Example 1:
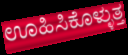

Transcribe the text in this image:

ಊಹಿಸಿಕೊಳ್ಳುತ್ತ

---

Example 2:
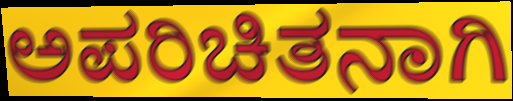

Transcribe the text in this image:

ಅಪರಿಚಿತನಾಗಿ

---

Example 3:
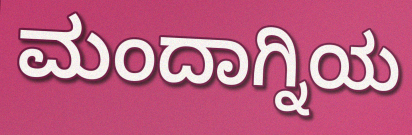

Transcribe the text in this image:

ಮಂದಾಗ್ನಿಯ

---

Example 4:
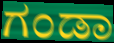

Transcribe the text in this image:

ಗಂಡಾ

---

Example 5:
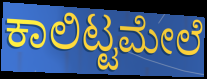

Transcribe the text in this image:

ಕಾಲಿಟ್ಟಮೇಲೆ